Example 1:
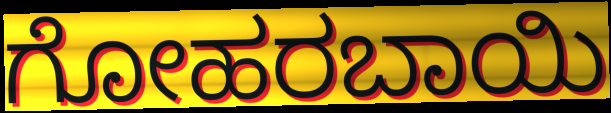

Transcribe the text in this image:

ಗೋಹರಬಾಯಿ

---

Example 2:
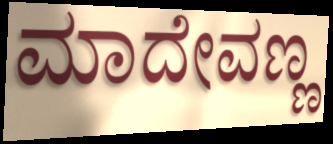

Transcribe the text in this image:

ಮಾದೇವಣ್ಣ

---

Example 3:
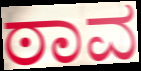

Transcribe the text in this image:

ಠಾವ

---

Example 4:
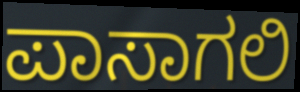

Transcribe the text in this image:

ಪಾಸಾಗಲಿ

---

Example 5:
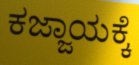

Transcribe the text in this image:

ಕಜ್ಜಾಯಕ್ಕೆ